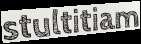
stultitiam